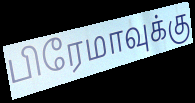
பிரேமாவுக்கு